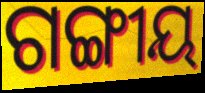
ଗଙ୍ଗୀୟ